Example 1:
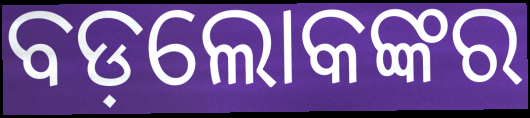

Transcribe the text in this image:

ବଡ଼ଲୋକଙ୍କର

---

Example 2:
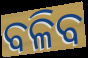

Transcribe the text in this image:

ବଳିବ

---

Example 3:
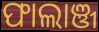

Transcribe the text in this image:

ଫାଲାଞ୍ଜ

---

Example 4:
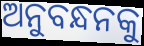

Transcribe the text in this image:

ଅନୁବନ୍ଧନକୁ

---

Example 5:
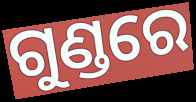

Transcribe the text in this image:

ଗୁଣ୍ଡରେ